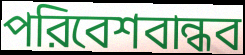
পরিবেশবান্ধব